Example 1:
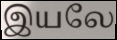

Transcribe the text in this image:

இயலே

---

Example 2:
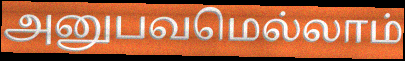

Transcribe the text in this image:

அனுபவமெல்லாம்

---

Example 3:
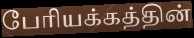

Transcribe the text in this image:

பேரியக்கத்தின்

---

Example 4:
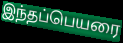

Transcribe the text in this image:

இந்தப்பெயரை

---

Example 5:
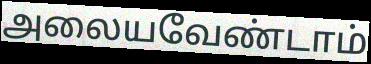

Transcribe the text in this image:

அலையவேண்டாம்